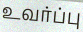
உவர்ப்பு